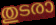
തുടരാ